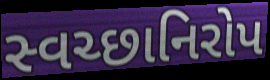
સ્વચ્છાનિરોપ